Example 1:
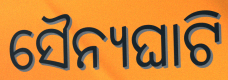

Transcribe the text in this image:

ସୈନ୍ୟଘାଟି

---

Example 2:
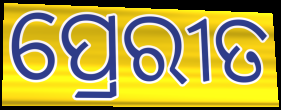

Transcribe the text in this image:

ପ୍ରେରୀତ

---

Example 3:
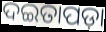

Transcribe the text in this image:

ଦଇତାପଡ଼ା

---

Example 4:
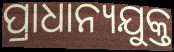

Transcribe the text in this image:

ପ୍ରାଧାନ୍ୟଯୁକ୍ତ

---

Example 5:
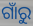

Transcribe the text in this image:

ଗାଁରୁ